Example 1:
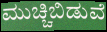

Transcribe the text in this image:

ಮುಚ್ಚಿಬಿಡುವೆ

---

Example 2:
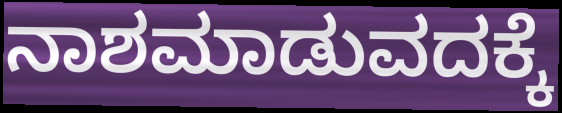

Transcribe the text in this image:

ನಾಶಮಾಡುವದಕ್ಕೆ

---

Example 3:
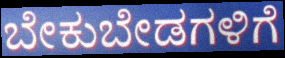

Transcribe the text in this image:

ಬೇಕುಬೇಡಗಳಿಗೆ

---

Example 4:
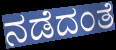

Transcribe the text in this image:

ನಡೆದಂತೆ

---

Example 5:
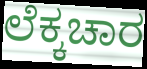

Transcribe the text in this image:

ಲೆಕ್ಕಚಾರ